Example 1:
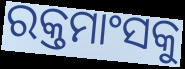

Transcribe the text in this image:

ରକ୍ତମାଂସକୁ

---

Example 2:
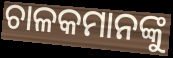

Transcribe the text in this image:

ଚାଳକମାନଙ୍କୁ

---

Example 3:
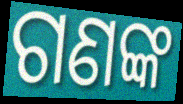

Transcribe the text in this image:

ଗଣଙ୍କ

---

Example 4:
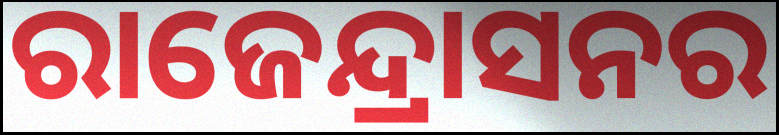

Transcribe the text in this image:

ରାଜେନ୍ଦ୍ରାସନର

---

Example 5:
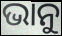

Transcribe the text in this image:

ଭାନୁ